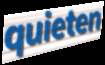
quieten